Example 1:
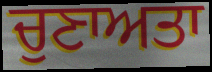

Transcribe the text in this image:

ਚੁਣਾਅਤਾ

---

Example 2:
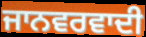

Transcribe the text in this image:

ਜਾਨਵਰਵਾਦੀ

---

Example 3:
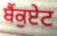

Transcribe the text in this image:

ਬੈਂਕੁਏਟ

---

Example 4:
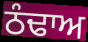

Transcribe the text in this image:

ਠੰਢਾਅ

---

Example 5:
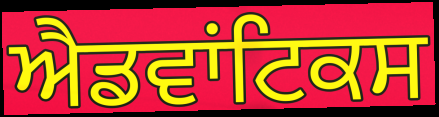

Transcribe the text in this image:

ਐਡਵਾਂਟਿਕਸ